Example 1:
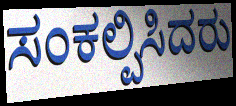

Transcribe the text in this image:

ಸಂಕಲ್ಪಿಸಿದರು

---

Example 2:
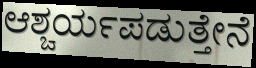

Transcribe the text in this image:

ಆಶ್ಚರ್ಯಪಡುತ್ತೇನೆ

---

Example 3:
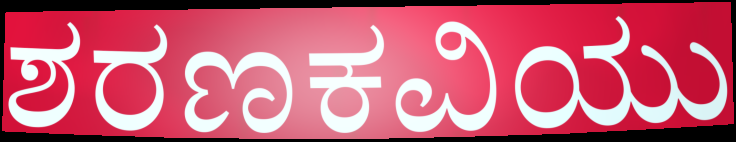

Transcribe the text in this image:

ಶರಣಕವಿಯು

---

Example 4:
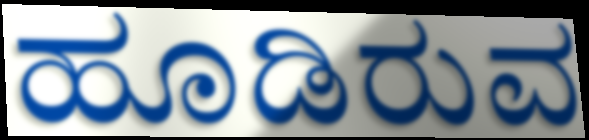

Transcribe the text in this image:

ಹೂಡಿರುವ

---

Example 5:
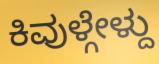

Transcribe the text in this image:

ಕಿವುಳ್ಗೇಳ್ದು